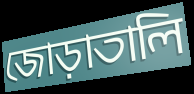
জোড়াতালি